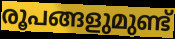
രൂപങ്ങളുമുണ്ട്